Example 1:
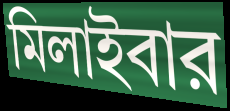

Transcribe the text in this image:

মিলাইবার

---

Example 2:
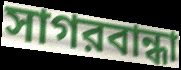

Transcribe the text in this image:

সাগরবান্ধা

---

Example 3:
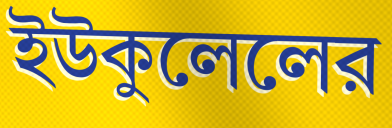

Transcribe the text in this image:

ইউকুলেলের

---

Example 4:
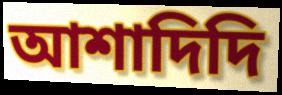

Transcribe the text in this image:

আশাদিদি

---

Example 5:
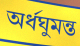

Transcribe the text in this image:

অর্ধঘুমন্ত